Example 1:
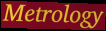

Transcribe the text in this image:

Metrology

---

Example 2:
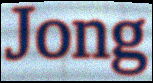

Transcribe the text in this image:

Jong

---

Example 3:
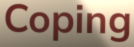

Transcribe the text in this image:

Coping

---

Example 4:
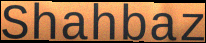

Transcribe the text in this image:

Shahbaz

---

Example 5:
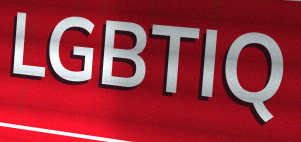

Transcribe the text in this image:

LGBTIQ